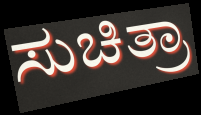
ಸುಚಿತ್ರಾ